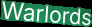
Warlords